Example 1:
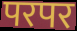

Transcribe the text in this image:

परपर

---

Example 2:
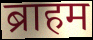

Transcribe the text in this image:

ब्राहम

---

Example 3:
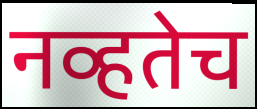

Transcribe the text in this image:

नव्हतेच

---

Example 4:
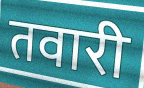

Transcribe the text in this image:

तवारी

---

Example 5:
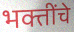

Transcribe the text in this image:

भक्तींचे